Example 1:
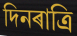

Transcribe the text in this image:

দিনৰাত্ৰি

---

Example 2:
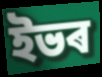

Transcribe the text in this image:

ইভৰ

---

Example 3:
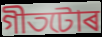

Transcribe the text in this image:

গীতটোৰ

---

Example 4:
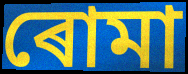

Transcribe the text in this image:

ৰোমা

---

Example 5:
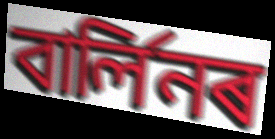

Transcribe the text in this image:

বাৰ্লিনৰ